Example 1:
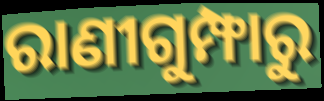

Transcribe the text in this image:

ରାଣୀଗୁମ୍ଫାରୁ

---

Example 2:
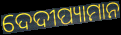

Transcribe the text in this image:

ଦେଦୀପ୍ୟାମାନ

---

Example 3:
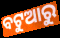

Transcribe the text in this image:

ବଟୁଆରୁ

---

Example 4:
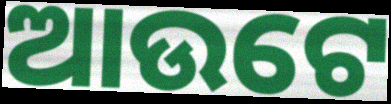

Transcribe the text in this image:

ଆଉଟେ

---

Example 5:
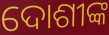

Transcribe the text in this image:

ଦୋଶୀଙ୍କ